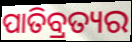
ପାତିବ୍ରତ୍ୟର